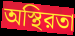
অস্থিরতা